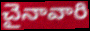
చైనావారి